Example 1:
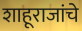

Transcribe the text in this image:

शाहूराजांचे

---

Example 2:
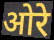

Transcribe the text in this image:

ओरे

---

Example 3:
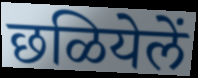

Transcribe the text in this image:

छळियेलें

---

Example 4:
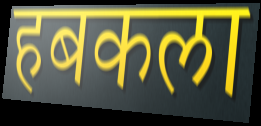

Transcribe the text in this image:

हबकला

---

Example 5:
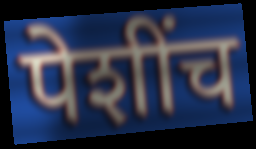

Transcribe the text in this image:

पेशींच